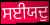
ਸਈਯਦੁ